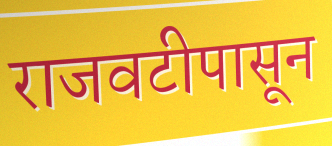
राजवटीपासून